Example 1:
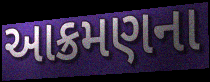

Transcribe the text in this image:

આક્રમણના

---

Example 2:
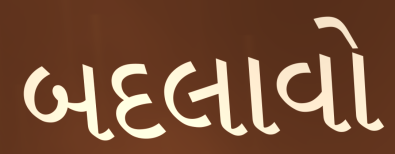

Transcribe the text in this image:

બદલાવો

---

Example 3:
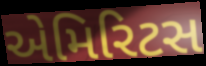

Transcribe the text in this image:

એમિરિટસ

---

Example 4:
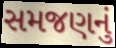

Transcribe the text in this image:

સમજણનું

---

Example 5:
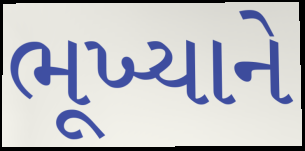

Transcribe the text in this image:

ભૂખ્યાને